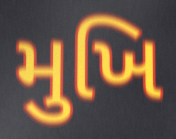
મુખિ